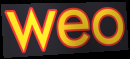
weo